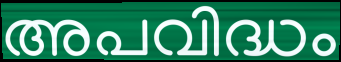
അപവിദ്ധം